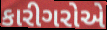
કારીગરોએ